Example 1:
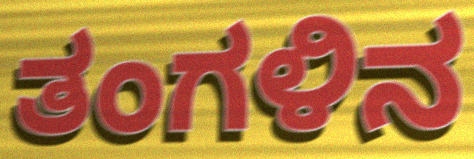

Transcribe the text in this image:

ತಂಗಳಿನ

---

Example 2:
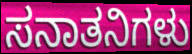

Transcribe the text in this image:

ಸನಾತನಿಗಳು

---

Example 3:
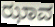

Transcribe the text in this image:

ಝಾವ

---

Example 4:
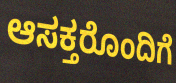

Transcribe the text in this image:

ಆಸಕ್ತರೊಂದಿಗೆ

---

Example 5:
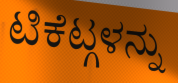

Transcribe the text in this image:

ಟಿಕೆಟ್ಗಳನ್ನು